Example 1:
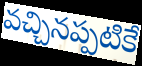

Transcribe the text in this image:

వచ్చినప్పటికే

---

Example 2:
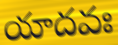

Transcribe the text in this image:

యాదవః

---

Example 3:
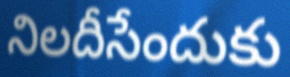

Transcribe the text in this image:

నిలదీసేందుకు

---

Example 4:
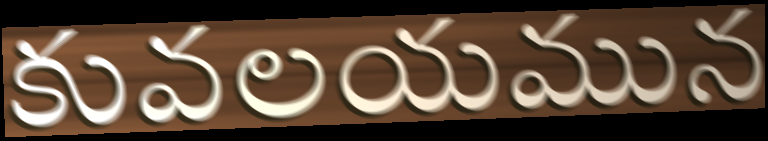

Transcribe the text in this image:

కువలయమున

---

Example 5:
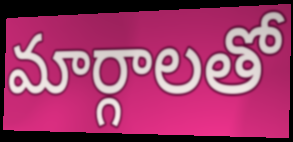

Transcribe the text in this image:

మార్గాలతో